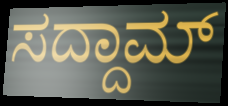
ಸದ್ದಾಮ್